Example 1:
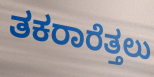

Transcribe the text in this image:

ತಕರಾರೆತ್ತಲು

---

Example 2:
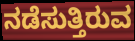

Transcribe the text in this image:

ನಡೆಸುತ್ತಿರುವ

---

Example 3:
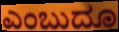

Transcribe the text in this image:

ಎಂಬುದೂ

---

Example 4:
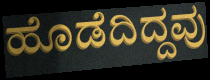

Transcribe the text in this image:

ಹೊಡೆದಿದ್ದವು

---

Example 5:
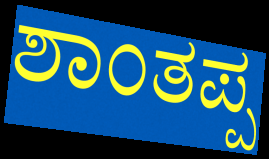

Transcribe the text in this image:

ಶಾಂತಪ್ಪ